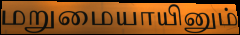
மறுமையாயினும்